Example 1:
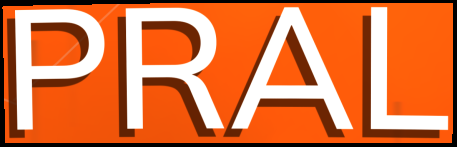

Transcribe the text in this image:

PRAL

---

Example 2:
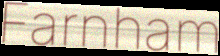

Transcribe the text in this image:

Farnham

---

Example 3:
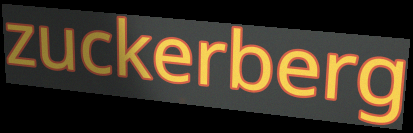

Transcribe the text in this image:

zuckerberg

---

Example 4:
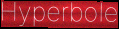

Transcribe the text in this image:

Hyperbole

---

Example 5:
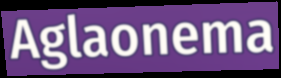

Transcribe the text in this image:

Aglaonema